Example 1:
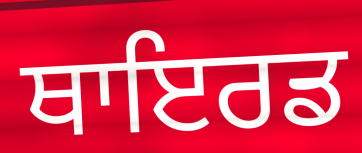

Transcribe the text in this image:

ਥਾਇਰਡ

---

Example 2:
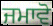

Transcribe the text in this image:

ਜਮਾਵੋ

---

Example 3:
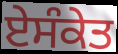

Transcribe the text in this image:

ਏਸੰਕੇਤ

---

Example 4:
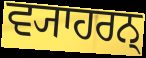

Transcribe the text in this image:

ਵ੍ਯਾਹਰਨ੍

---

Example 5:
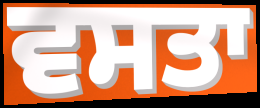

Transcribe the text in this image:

ਵਸਤਾ